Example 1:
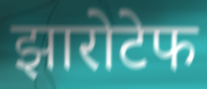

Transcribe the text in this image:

झारोटेफ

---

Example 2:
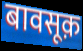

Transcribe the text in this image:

बावसूक़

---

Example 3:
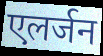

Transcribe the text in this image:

एलर्जन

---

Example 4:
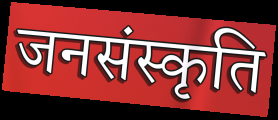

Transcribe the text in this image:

जनसंस्कृति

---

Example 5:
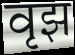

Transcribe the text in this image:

वृझ